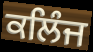
ਕਲਿੰਜ